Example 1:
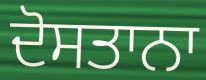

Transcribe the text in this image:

ਦੋਸਤਾਨਾ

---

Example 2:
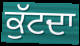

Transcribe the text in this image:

ਕੁੱਟਦਾ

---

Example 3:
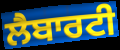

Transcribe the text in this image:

ਲੈਬਾਰਟੀ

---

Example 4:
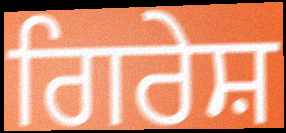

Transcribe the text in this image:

ਗਿਰੇਸ਼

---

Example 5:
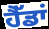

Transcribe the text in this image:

ਹੈੱਡਾਂ